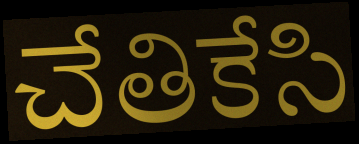
చేతికేసి